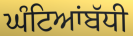
ਘੰਟਿਆਂਬੱਧੀ